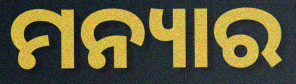
ମନ୍ୟାର